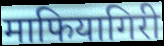
माफियागिरी